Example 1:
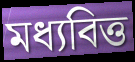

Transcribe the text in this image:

মধ্যবিত্ত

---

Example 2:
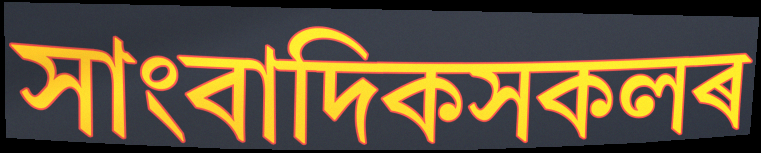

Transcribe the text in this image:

সাংবাদিকসকলৰ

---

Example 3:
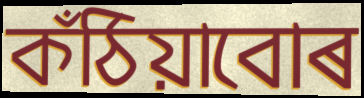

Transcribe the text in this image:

কঁঠিয়াবোৰ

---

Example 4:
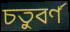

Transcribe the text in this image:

চতুবৰ্ণ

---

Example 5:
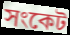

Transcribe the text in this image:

সংকেট